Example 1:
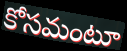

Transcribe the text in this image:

కోసమంటూ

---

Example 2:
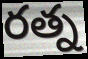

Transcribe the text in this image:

రత్న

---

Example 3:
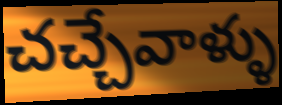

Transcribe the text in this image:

చచ్చేవాళ్ళు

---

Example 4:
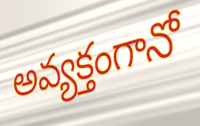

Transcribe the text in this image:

అవ్యక్తంగానో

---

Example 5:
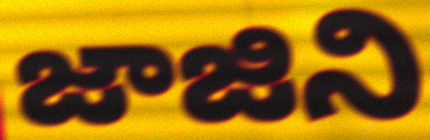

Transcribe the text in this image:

జాజిని